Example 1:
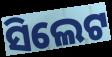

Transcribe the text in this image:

ସିଲେଟ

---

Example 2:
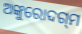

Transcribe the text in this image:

ଅଙ୍କୁରୋଦଗ୍‌ମ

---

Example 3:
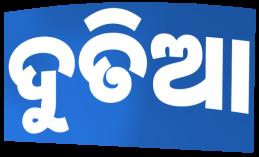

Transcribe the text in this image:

ଦୁତିଆ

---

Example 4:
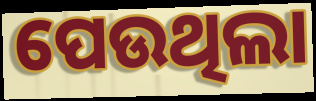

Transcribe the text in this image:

ପେଉଥିଲା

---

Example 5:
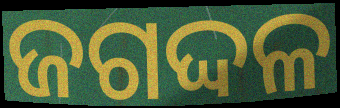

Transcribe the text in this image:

ଜଗଦ୍ଦଳ